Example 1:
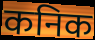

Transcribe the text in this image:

कनिक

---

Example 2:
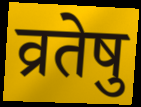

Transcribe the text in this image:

व्रतेषु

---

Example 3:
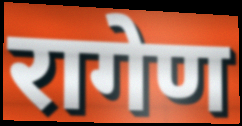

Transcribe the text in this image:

रागेण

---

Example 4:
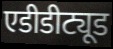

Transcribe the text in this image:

एडीडीट्यूड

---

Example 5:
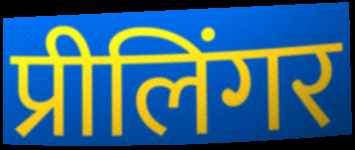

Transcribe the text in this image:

प्रीलिंगर